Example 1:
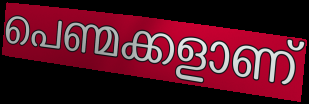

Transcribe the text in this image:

പെണ്മക്കളാണ്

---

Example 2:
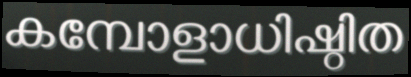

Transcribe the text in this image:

കമ്പോളാധിഷ്ഠിത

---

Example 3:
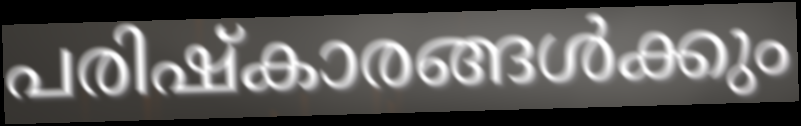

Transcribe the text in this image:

പരിഷ്കാരങ്ങൾക്കും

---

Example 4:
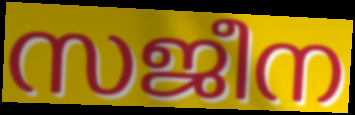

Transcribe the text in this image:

സജീന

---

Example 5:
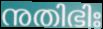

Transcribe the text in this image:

നുതിഭിഃ